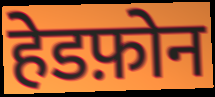
हेडफ़ोन